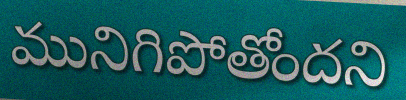
మునిగిపోతోందని